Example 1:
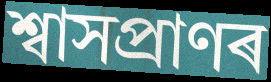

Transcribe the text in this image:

শ্বাসপ্ৰাণৰ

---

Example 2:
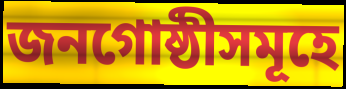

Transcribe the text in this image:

জনগোষ্ঠীসমূহে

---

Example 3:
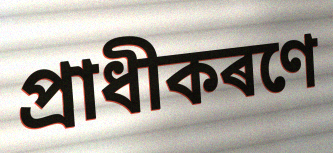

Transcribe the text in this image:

প্ৰাধীকৰণে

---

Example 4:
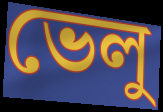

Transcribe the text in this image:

ভেলু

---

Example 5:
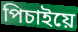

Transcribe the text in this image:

পিচাইয়ে